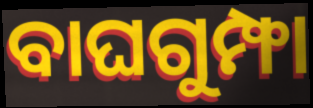
ବାଘଗୁମ୍ଫା